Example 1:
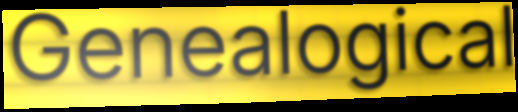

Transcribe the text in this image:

Genealogical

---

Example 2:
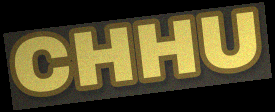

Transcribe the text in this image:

CHHU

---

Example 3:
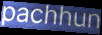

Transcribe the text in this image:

pachhun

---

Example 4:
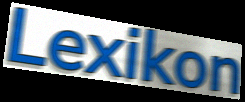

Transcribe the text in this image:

Lexikon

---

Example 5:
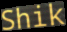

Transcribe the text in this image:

Shik